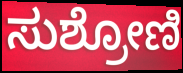
ಸುಶ್ರೋಣಿ